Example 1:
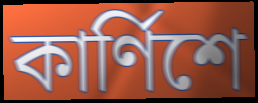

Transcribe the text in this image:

কার্ণিশে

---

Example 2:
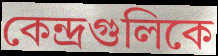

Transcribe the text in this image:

কেন্দ্রগুলিকে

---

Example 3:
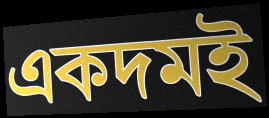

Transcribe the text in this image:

একদমই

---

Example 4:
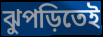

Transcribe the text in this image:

ঝুপড়িতেই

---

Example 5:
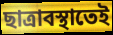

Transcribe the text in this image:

ছাত্রাবস্থাতেই